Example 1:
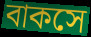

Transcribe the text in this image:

বাকসে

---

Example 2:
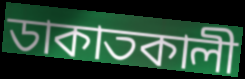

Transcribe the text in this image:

ডাকাতকালী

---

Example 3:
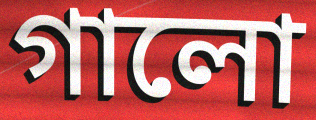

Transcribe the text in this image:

গালো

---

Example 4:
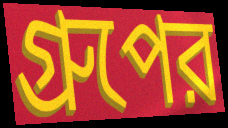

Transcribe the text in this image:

গ্রুপের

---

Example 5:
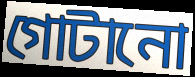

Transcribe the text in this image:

গোটানো